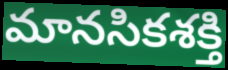
మానసికశక్తి